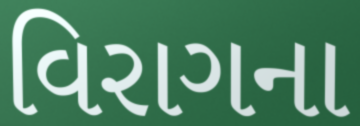
વિરાગના